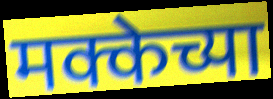
मक्केच्या